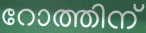
റോത്തിന്